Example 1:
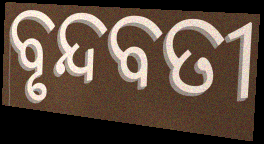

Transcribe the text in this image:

ବୃନ୍ଦବତୀ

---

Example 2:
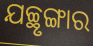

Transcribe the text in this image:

ଯଚ୍ଛୃଙ୍ଗାର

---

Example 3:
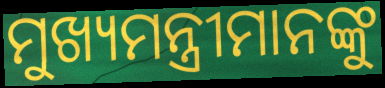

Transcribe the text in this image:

ମୁଖ୍ୟମନ୍ତ୍ରୀମାନଙ୍କୁ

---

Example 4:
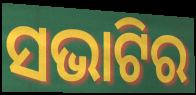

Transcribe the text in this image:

ସଭାଟିର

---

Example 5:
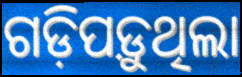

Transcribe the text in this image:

ଗଡ଼ିପଡ଼ୁଥିଲା